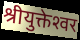
श्रीयुक्तेश्वर